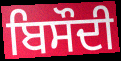
ਬਿਸੌਦੀ